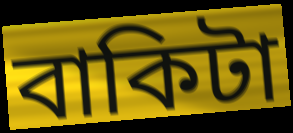
বাকিটা